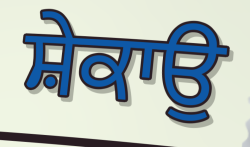
ਸ਼ੇਕਾਉ